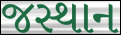
જસ્થાન